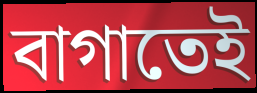
বাগাতেই